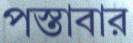
পস্তাবার